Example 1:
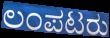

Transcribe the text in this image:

ಲಂಪಟರು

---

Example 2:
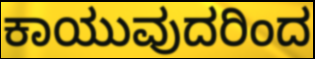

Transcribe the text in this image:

ಕಾಯುವುದರಿಂದ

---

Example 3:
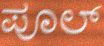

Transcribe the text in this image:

ಪೂಲ್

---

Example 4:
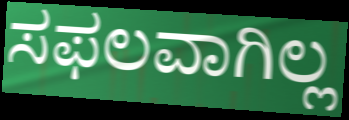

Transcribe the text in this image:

ಸಫಲವಾಗಿಲ್ಲ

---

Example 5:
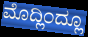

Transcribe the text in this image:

ಮೊದ್ಲಿಂದ್ಲೂ